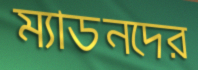
ম্যাডনদের